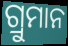
ଗ୍ରୁମାନ